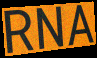
RNA